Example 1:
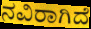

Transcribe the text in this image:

ನವಿರಾಗಿದೆ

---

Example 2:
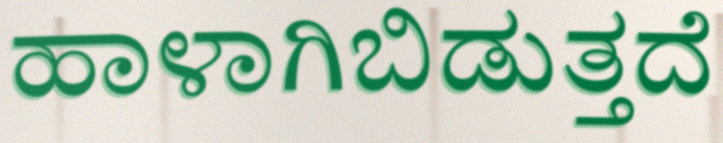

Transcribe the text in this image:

ಹಾಳಾಗಿಬಿಡುತ್ತದೆ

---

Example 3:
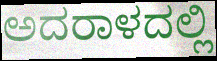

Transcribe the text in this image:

ಅದರಾಳದಲ್ಲಿ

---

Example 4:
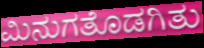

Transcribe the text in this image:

ಮಿನುಗತೊಡಗಿತು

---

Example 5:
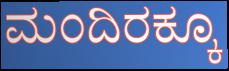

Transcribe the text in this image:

ಮಂದಿರಕ್ಕೂ